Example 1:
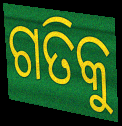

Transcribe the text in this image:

ଗତିକୁ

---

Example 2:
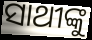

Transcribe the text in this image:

ସାଥୀଙ୍କୁ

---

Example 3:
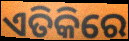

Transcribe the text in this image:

ଏତିକିରେ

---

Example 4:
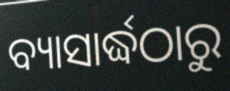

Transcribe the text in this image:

ବ୍ୟାସାର୍ଦ୍ଧଠାରୁ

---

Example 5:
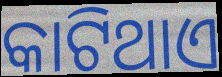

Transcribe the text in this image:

କାଟିଥାଏ